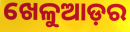
ଖେଳୁଆଡ଼ର